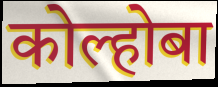
कोल्होबा